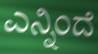
ಎನ್ನಿಂದೆ